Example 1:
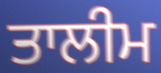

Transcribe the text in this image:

ਤਾਲੀਮ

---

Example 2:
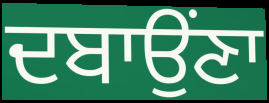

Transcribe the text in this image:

ਦਬਾਉਂਣਾ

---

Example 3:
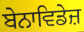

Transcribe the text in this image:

ਬੇਨਾਵਿਡੇਜ਼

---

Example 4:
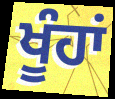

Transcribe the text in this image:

ਖੂੰਹਾਂ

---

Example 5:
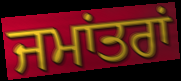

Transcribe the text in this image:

ਜਮਾਂਤਰਾਂ